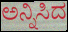
ಅನ್ನಿಸಿದ